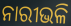
ନାରୀଭଳି